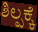
ಶಿಲ್ಪಕ್ಕೆ